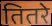
तितरे